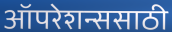
ऑपरेशन्ससाठी